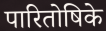
पारितोषिके